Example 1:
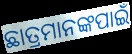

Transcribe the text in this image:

ଛାତ୍ରମାନଙ୍କପାଇଁ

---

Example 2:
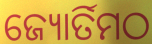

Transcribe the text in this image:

ଜ୍ୟୋର୍ତିମଠ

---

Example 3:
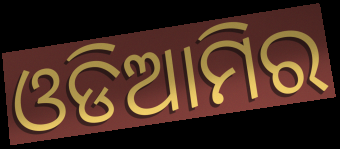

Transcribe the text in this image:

ଓଡିଆମିର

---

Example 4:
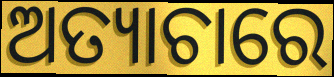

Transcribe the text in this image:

ଅତ୍ୟାଚାରେ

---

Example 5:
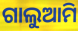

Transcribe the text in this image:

ଗାଲୁଆମି